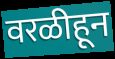
वरळीहून